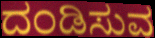
ದಂಡಿಸುವ